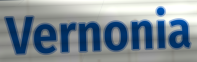
Vernonia